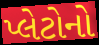
પ્લેટોનો